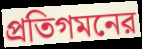
প্রতিগমনের